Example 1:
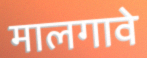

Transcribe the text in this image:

मालगावे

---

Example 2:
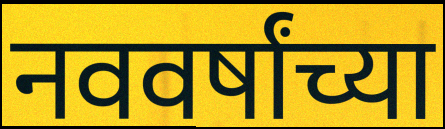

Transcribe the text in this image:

नववर्षांच्या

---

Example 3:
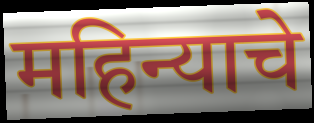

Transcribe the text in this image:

महिन्याचे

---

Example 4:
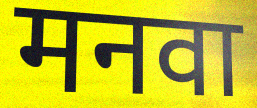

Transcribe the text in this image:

मनवा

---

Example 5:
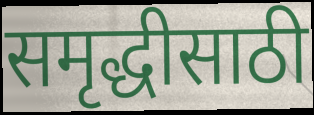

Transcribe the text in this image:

समृद्धीसाठी